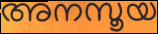
അനസൂയ